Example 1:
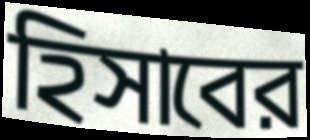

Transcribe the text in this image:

হিসাবের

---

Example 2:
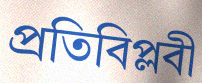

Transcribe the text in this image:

প্রতিবিপ্লবী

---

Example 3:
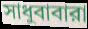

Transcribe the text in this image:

সাধুবাবারা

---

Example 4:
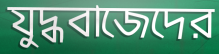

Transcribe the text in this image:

যুদ্ধবাজেদের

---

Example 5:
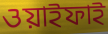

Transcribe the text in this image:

ওয়াইফাই